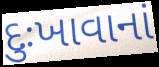
દુઃખાવાનાં